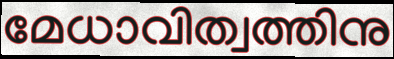
മേധാവിത്വത്തിനു